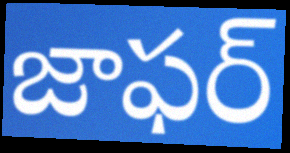
జాఫర్